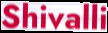
Shivalli